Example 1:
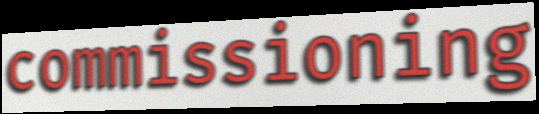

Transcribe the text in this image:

commissioning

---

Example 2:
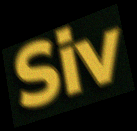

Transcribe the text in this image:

Siv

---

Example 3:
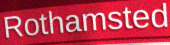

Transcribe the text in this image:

Rothamsted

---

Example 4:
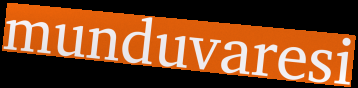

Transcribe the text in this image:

munduvaresi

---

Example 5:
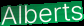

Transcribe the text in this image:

Alberts